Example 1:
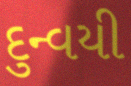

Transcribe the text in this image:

દુન્વયી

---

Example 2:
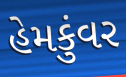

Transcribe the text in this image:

હેમકુંવર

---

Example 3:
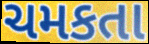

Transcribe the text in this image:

ચમકતા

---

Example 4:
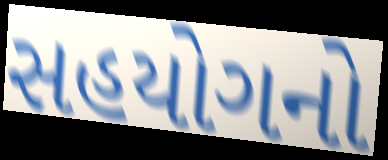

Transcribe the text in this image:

સહયોગનો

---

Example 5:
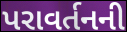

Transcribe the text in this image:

પરાવર્તનની